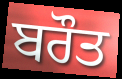
ਬਰੌਤ